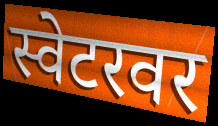
स्वेटरवर